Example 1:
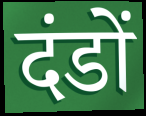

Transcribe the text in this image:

दंडों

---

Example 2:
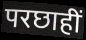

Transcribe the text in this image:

परछाहीं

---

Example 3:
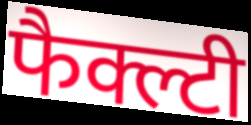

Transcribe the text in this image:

फैक्ल्टी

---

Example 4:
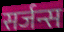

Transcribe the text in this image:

सर्जन्स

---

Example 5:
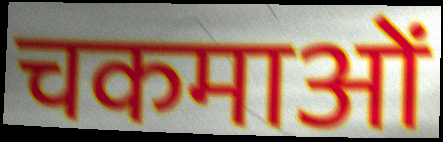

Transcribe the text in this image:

चकमाओं